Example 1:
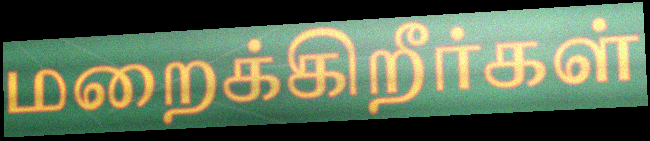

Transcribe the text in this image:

மறைக்கிறீர்கள்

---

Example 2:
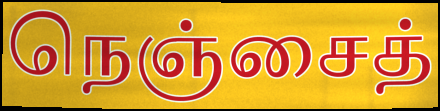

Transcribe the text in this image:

நெஞ்சைத்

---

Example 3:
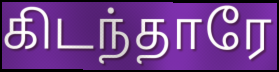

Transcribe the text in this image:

கிடந்தாரே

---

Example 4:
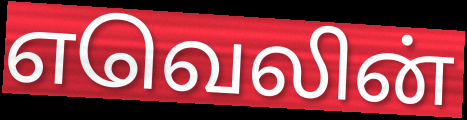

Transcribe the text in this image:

எவெலின்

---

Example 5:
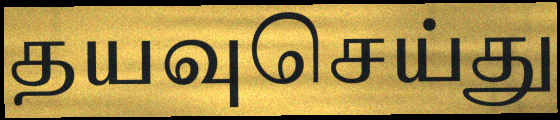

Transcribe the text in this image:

தயவுசெய்து